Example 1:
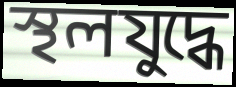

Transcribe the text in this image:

স্থলযুদ্ধে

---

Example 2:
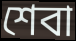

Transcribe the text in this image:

শেবা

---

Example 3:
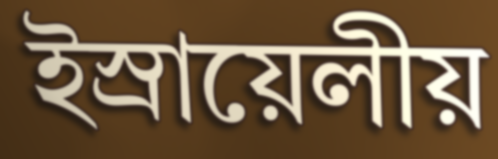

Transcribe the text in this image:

ইস্রায়েলীয়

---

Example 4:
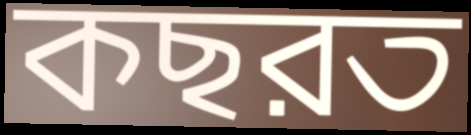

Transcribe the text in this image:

কছরত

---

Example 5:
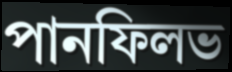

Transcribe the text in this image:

পানফিলভ